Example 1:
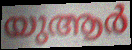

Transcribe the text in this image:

യുആർ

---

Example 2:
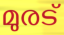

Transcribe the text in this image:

മുരട്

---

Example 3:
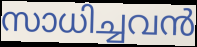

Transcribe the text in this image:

സാധിച്ചവൻ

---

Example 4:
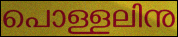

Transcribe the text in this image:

പൊള്ളലിനു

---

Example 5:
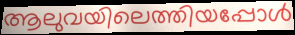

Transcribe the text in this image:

ആലുവയിലെത്തിയപ്പോൾ